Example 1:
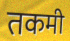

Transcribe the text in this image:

तकमी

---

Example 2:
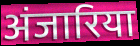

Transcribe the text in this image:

अंजारिया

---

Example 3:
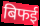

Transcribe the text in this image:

बिफई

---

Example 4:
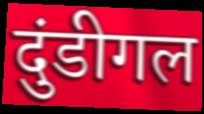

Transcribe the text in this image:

दुंडीगल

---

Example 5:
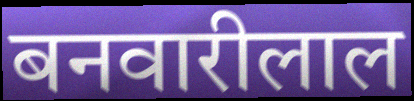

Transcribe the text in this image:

बनवारीलाल